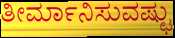
ತೀರ್ಮಾನಿಸುವಷ್ಟು